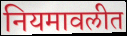
नियमावलीत